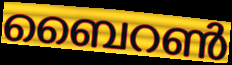
ബൈറൺ